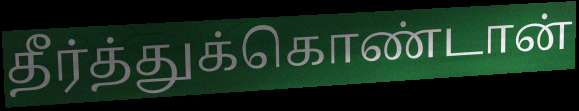
தீர்த்துக்கொண்டான்